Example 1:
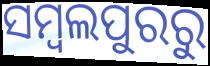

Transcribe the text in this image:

ସମ୍ବଲପୁରରୁ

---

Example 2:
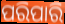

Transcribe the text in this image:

ପରିପାରି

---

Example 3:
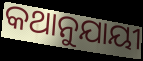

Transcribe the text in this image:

କଥାନୁଯାୟୀ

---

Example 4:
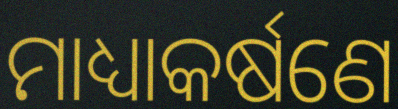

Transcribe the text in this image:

ମାଧ୍ୟାକର୍ଷଣେ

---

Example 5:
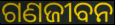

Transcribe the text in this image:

ଗଣଜୀବନ